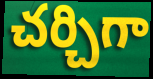
చర్చిగా